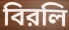
বিরলি